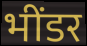
भींडर